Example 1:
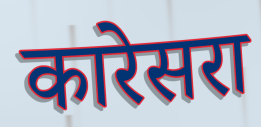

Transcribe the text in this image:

कारेसरा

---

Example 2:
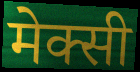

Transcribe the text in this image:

मेक्सी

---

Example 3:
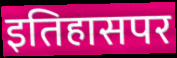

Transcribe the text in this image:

इतिहासपर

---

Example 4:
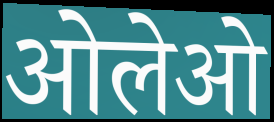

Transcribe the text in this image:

ओलेओ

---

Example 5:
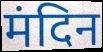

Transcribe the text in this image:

मंदिन